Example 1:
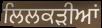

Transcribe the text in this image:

ਲਿਲਕੜੀਆਂ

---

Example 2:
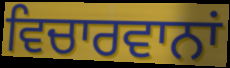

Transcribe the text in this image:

ਵਿਚਾਰਵਾਨਾਂ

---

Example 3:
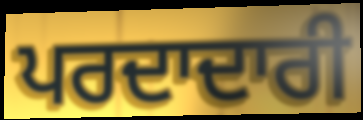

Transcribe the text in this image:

ਪਰਦਾਦਾਰੀ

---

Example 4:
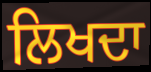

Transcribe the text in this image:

ਲਿਖਦਾ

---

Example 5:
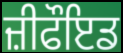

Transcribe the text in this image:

ਜ਼ੀਫੌਇਡ